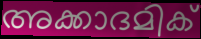
അക്കാദമിക്